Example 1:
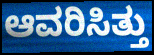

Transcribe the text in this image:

ಆವರಿಸಿತ್ತು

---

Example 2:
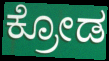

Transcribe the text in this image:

ಕ್ರೋಡ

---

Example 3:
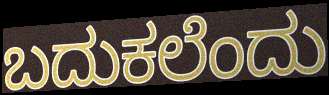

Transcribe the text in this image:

ಬದುಕಲೆಂದು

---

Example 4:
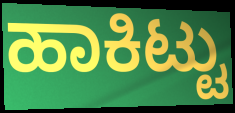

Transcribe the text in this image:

ಹಾಕಿಟ್ಟು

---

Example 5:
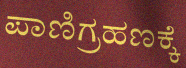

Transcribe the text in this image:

ಪಾಣಿಗ್ರಹಣಕ್ಕೆ